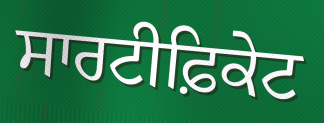
ਸਾਰਟੀਫ਼ਿਕੇਟ